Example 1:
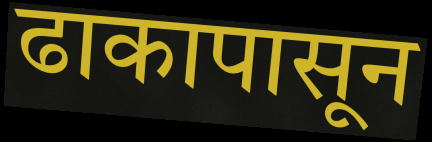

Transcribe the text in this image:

ढाकापासून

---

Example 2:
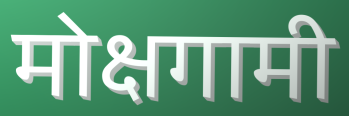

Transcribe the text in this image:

मोक्षगामी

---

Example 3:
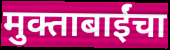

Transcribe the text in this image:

मुक्ताबाईंचा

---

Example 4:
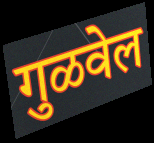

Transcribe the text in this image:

गुळवेल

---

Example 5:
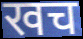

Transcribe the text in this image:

खच